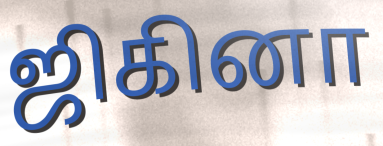
ஜிகினா